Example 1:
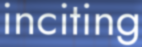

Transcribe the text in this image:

inciting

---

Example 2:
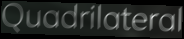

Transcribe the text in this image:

Quadrilateral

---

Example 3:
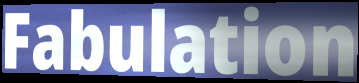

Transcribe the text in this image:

Fabulation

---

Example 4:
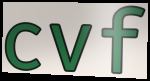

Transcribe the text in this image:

cvf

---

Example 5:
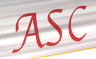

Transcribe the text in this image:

ASC